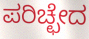
ಪರಿಚ್ಛೇದ